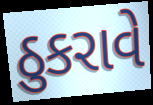
ઠુકરાવે